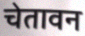
चेतावन